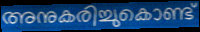
അനുകരിച്ചുകൊണ്ട്